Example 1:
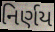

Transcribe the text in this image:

નિર્ણય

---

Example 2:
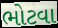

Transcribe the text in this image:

ભોટવા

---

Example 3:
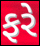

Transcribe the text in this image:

ફરે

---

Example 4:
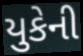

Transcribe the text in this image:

યુકેની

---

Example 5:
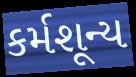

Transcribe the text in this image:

કર્મશૂન્ય